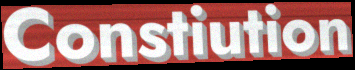
Constiution